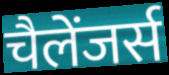
चैलेंजर्स